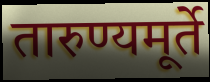
तारुण्यमूर्ते